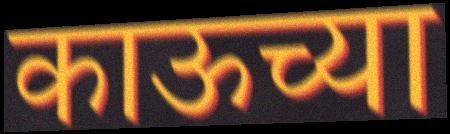
काऊच्या